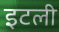
इटली